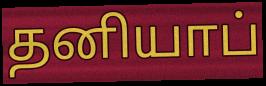
தனியாப்